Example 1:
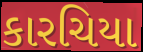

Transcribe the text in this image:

કારચિયા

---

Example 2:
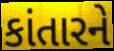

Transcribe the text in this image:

કાંતારને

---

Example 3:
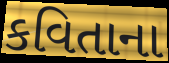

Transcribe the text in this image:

કવિતાના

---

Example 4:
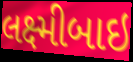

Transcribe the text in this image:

લક્ષ્મીબાઇ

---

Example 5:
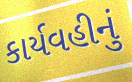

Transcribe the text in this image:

કાર્યવહીનું